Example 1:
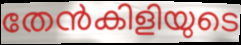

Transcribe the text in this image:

തേൻകിളിയുടെ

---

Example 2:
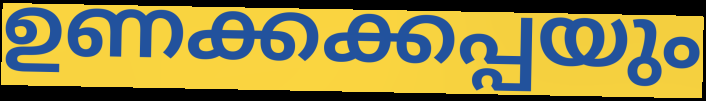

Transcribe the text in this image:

ഉണക്കക്കപ്പയും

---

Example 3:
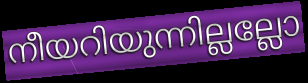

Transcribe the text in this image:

നീയറിയുന്നില്ലല്ലോ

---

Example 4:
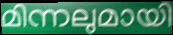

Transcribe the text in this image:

മിന്നലുമായി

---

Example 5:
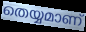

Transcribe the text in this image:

തെയ്യമാണ്